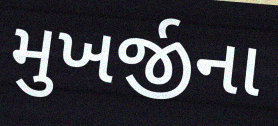
મુખર્જીના